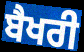
ਬੈਖਰੀ